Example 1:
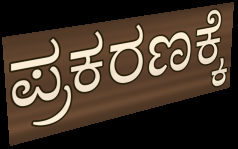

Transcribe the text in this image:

ಪ್ರಕರಣಕ್ಕೆ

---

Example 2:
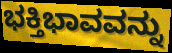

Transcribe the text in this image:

ಭಕ್ತಿಭಾವವನ್ನು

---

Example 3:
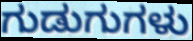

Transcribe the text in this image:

ಗುಡುಗುಗಳು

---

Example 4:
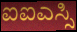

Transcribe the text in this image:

ಐಐಎಸ್ಸಿ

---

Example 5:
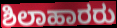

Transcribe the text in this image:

ಶಿಲಾಹಾರರು